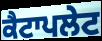
ਕੈਟਾਪਲੇਟ